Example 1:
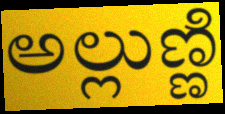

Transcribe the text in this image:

అల్లుణ్ణి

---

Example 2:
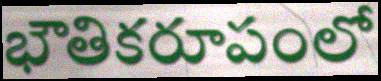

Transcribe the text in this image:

భౌతికరూపంలో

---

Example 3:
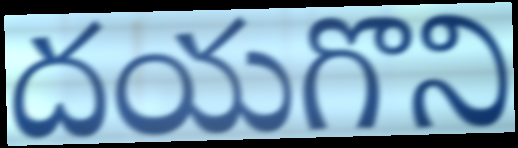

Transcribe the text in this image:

దయగొని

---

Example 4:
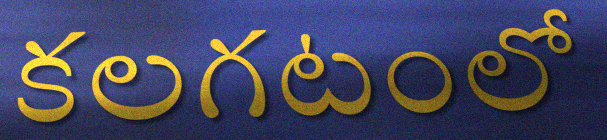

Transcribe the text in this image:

కలగటంలో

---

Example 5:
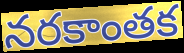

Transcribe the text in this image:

నరకాంతక